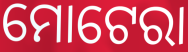
ମୋଟେରା